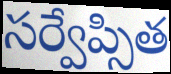
సర్వేప్సిత